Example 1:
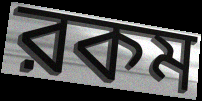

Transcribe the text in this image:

রকম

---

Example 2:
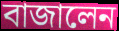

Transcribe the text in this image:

বাজালেন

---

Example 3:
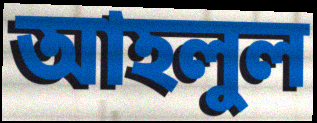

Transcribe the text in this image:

আহলুল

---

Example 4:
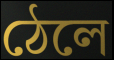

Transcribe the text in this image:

ঠেলে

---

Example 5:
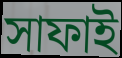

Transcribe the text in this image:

সাফাই